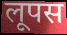
लूपस